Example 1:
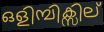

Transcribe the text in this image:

ഒളിമ്പിക്സില്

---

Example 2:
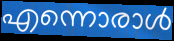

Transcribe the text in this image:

എന്നൊരാൾ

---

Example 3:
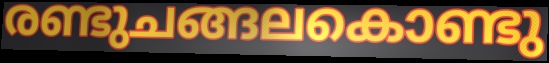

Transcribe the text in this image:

രണ്ടുചങ്ങലകൊണ്ടു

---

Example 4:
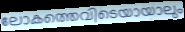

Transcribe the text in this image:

ലോകത്തെവിടെയായാലും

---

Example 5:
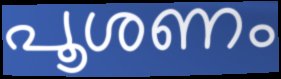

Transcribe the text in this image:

പൂശണം